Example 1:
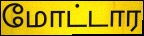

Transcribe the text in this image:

மோட்டார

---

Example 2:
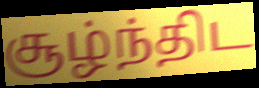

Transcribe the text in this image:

சூழ்ந்திட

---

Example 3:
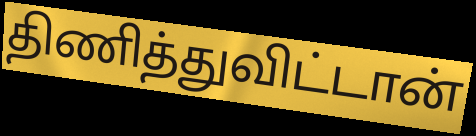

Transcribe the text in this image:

திணித்துவிட்டான்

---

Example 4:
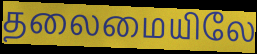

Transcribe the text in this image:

தலைமையிலே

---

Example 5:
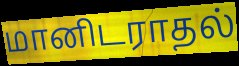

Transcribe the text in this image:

மானிடராதல்